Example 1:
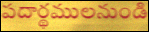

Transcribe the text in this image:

పదార్థములనుండి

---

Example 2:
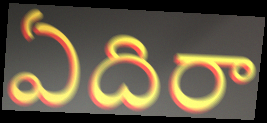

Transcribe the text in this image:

ఏదిరా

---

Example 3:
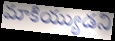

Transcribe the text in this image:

మాకియ్యుడని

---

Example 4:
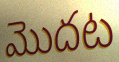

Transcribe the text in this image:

మొదట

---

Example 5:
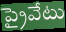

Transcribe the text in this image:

ప్రైవేటు